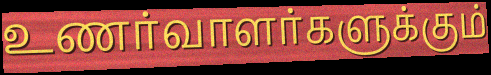
உணர்வாளர்களுக்கும்